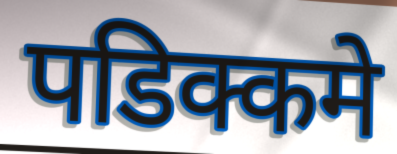
पडिक्कमे